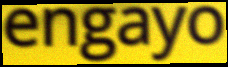
engayo